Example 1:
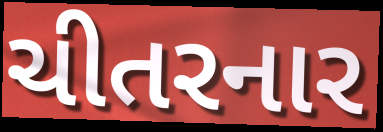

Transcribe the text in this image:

ચીતરનાર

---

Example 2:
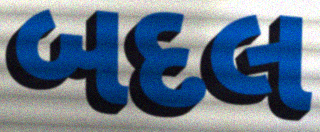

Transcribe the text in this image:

બદલ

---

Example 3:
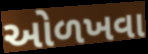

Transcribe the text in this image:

ઓળખવા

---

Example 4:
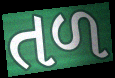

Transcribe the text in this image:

તળ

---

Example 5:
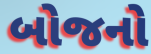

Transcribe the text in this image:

બોજનો